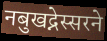
नबुखद्नेस्सरने